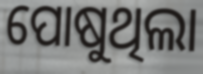
ପୋଷୁଥିଲା